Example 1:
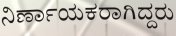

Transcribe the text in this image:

ನಿರ್ಣಾಯಕರಾಗಿದ್ದರು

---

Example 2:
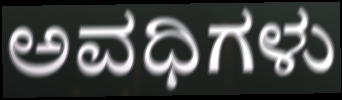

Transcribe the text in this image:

ಅವಧಿಗಳು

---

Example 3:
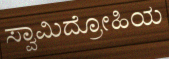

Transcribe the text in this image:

ಸ್ವಾಮಿದ್ರೋಹಿಯ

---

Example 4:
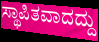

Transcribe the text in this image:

ಸ್ಥಾಪಿತವಾದದ್ದು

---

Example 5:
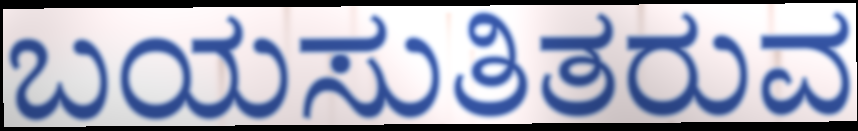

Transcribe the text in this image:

ಬಯಸುತಿತರುವ